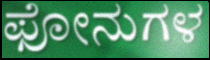
ಫೋನುಗಳ